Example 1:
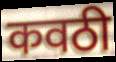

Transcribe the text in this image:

कवठी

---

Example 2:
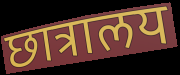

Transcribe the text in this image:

छात्रालय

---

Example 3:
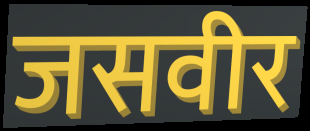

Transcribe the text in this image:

जसवीर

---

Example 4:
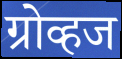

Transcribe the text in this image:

ग्रोव्हज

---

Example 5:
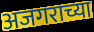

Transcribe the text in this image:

अजगराच्या